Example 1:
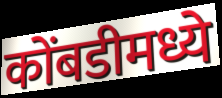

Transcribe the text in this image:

कोंबडीमध्ये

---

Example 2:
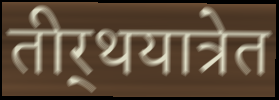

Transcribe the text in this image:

तीर्थयात्रेत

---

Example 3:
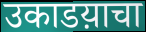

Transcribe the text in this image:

उकाडय़ाचा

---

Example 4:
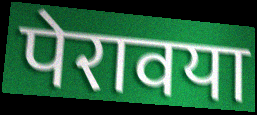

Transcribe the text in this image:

पेरावया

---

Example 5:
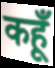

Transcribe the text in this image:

कहूँ